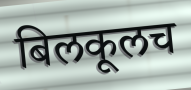
बिलकूलच